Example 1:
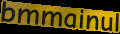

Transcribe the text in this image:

bmmainul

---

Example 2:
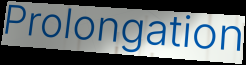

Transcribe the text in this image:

Prolongation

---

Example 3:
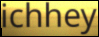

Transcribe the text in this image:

ichhey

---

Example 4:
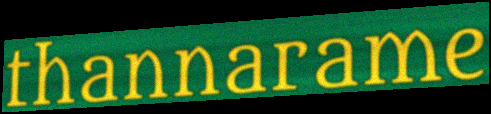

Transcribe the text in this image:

thannarame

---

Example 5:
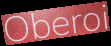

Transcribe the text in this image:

Oberoi